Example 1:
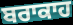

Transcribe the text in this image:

ਬਰਾਕਾਹ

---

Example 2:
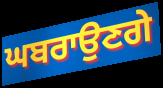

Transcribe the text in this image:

ਘਬਰਾਉਣਗੇ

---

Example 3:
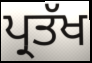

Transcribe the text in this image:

ਪ੍ਰਤੱਖ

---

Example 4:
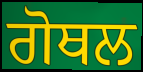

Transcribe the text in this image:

ਗੋਥਲ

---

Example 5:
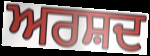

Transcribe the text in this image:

ਅਰਸ਼ਦ